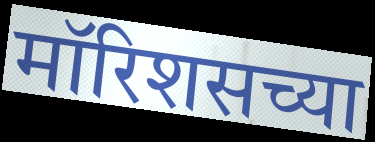
मॉरिशसच्या